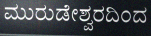
ಮುರುಡೇಶ್ವರದಿಂದ